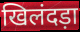
खिलंदड़ा